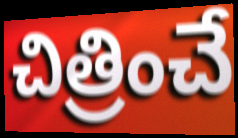
చిత్రించే